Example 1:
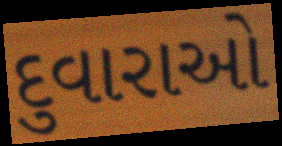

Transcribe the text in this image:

દુવારાઓ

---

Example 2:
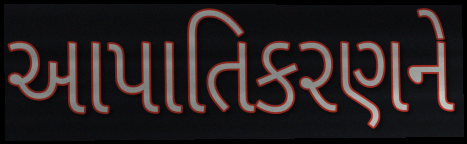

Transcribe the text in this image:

આપાતિકરણને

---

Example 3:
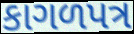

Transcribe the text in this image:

કાગળપત્ર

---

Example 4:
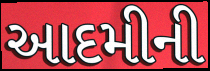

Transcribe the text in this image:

આદમીની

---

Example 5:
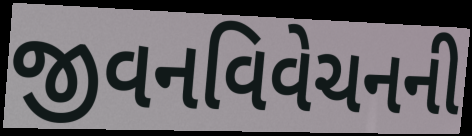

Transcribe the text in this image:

જીવનવિવેચનની